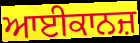
ਆਈਕਾਨਜ਼